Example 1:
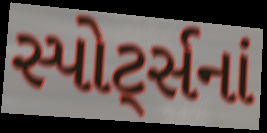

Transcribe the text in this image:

સ્પોર્ટ્સનાં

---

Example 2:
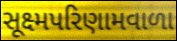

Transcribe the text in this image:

સૂક્ષ્મપરિણામવાળા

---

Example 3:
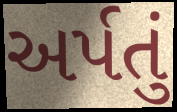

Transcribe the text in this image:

અર્પતું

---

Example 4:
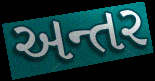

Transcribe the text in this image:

અન્તર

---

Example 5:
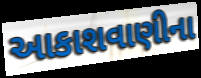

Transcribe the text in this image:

આકાશવાણીના